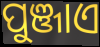
ପୁଞ୍ଜାଏ